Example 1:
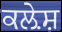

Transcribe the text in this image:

ਕਲ਼ੇਸ਼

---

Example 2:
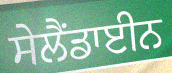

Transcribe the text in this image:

ਸੇਲੈਂਡਾਈਨ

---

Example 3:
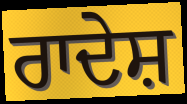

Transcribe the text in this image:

ਰਾਦੇਸ਼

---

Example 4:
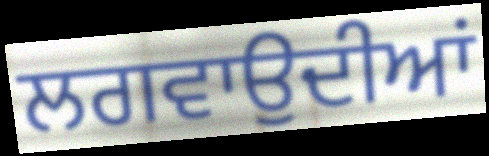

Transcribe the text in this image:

ਲਗਵਾਉਦੀਆਂ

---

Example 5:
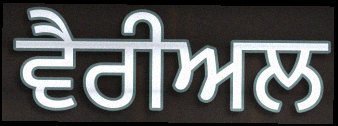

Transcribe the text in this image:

ਵੈਰੀਅਲ